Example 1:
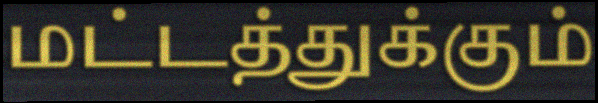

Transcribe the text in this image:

மட்டத்துக்கும்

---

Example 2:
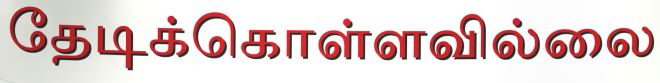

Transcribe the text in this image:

தேடிக்கொள்ளவில்லை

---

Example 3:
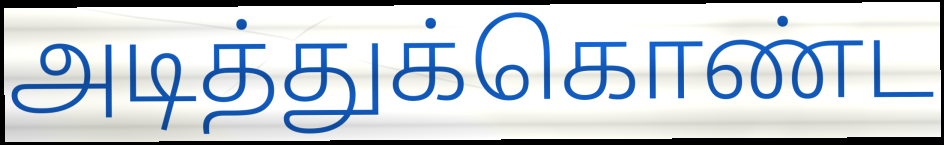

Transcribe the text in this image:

அடித்துக்கொண்ட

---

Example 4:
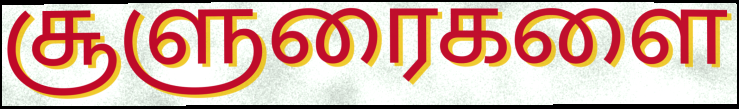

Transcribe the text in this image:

சூளுரைகளை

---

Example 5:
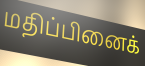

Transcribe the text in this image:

மதிப்பினைக்